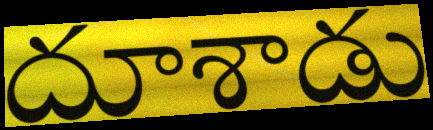
దూశాడు